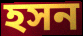
হসন